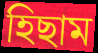
হিছাম